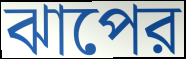
ঝাপের